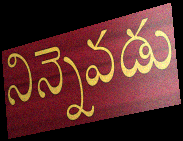
నిన్నెవడు